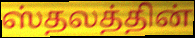
ஸ்தலத்தின்